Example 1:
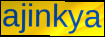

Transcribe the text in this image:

ajinkya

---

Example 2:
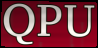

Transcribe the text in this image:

QPU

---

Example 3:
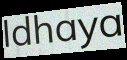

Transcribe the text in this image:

Idhaya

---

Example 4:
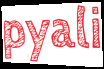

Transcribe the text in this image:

pyali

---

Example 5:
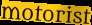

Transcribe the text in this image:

motorist